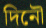
দিনৌ